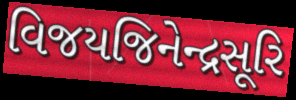
વિજયજિનેન્દ્રસૂરિ